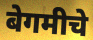
बेगमीचे